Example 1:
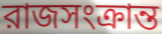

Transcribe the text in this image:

রাজসংক্রান্ত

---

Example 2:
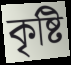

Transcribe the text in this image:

কৃষ্টি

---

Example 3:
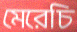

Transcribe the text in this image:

মেরেচি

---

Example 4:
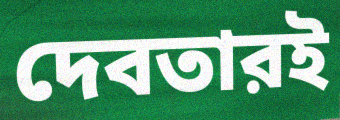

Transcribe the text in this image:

দেবতারই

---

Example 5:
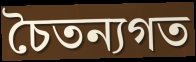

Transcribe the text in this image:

চৈতন্যগত